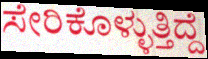
ಸೇರಿಕೊಳ್ಳುತ್ತಿದ್ದೆ